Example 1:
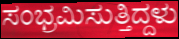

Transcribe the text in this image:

ಸಂಭ್ರಮಿಸುತ್ತಿದ್ದಳು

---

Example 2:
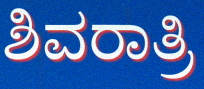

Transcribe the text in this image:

ಶಿವರಾತ್ರಿ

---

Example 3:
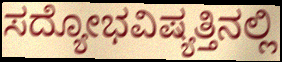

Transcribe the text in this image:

ಸದ್ಯೋಭವಿಷ್ಯತ್ತಿನಲ್ಲಿ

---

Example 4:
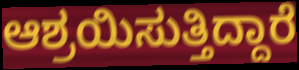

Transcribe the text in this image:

ಆಶ್ರಯಿಸುತ್ತಿದ್ದಾರೆ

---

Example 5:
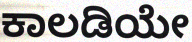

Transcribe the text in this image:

ಕಾಲಡಿಯೇ